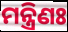
ମନ୍ତ୍ରିଣଃ